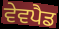
ਵੇਵਪੈਡ